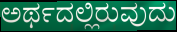
ಅರ್ಥದಲ್ಲಿರುವುದು